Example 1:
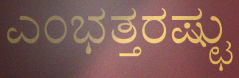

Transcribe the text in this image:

ಎಂಭತ್ತರಷ್ಟು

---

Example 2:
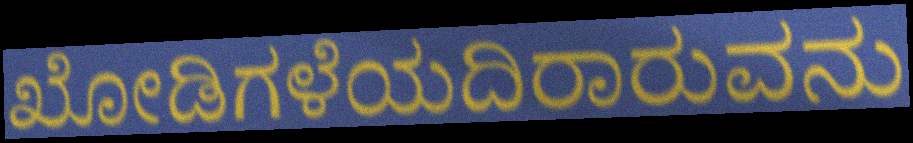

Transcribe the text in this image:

ಖೋಡಿಗಳೆಯದಿರಾರುವನು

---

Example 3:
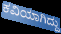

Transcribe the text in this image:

ಕವಿಯಾಗಿದ್ದು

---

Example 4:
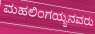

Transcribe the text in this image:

ಮಹಲಿಂಗಯ್ಯನವರು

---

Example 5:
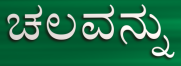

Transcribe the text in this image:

ಚಲವನ್ನು